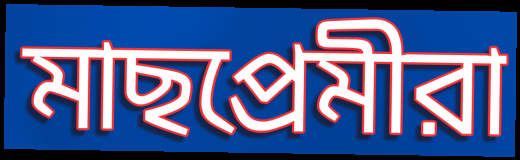
মাছপ্রেমীরা